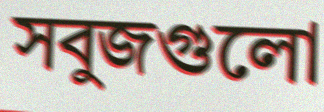
সবুজগুলো